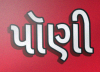
પૉણી